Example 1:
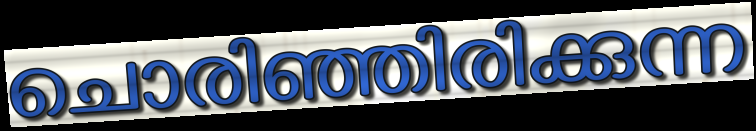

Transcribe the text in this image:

ചൊരിഞ്ഞിരിക്കുന്ന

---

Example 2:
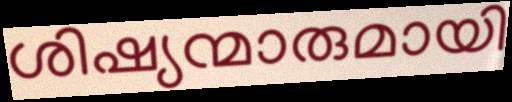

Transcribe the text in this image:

ശിഷ്യന്മാരുമായി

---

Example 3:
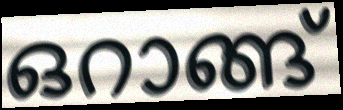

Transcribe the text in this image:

ഒറാങ്ങ്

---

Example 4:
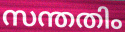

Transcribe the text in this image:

സന്തതിം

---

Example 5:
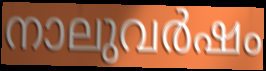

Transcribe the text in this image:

നാലുവർഷം